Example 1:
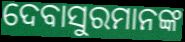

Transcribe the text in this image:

ଦେବାସୁରମାନଙ୍କ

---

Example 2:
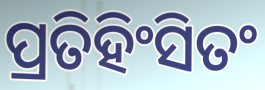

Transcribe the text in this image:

ପ୍ରତିହିଂସିତଂ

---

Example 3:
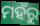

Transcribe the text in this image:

ମହଁରୁ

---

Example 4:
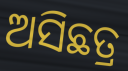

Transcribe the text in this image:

ଅସିଛତ୍ର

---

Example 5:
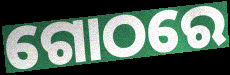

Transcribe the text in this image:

ଗୋଠରେ